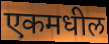
एकमधील